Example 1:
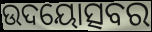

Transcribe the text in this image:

ଉଦୟୋତ୍ସବର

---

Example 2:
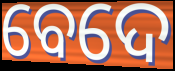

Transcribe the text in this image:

ବେଦେ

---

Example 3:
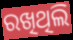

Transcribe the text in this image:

ରଖିଥିଲି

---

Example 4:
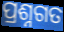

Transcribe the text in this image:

ପ୍ରଶ୍ନଗତ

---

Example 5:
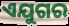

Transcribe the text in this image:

ଏଯୁଗର